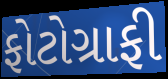
ફોટોગ્રાફી